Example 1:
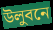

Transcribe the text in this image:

উলুবনে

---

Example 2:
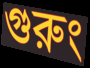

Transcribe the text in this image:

গুরুং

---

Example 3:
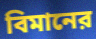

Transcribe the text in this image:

বিমানের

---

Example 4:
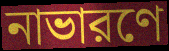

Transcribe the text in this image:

নাভারণে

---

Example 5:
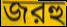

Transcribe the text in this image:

জরহু